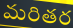
మరితర